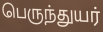
பெருந்துயர்